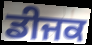
ਡੀਜਕ